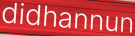
didhannun